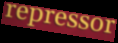
repressor